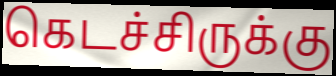
கெடச்சிருக்கு